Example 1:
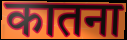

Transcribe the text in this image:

कातना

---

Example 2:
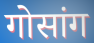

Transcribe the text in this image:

गोसांग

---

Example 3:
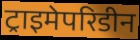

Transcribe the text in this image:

ट्राइमेपरिडीन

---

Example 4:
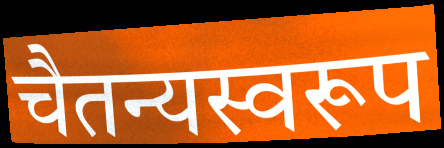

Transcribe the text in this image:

चैतन्यस्वरूप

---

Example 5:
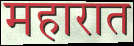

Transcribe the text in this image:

महारात